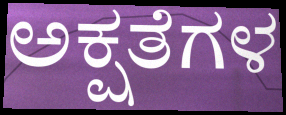
ಅಕ್ಷತೆಗಳ